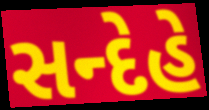
સન્દેહે